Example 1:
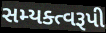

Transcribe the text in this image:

સમ્યક્ત્વરૂપી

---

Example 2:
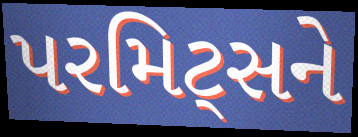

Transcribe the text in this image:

પરમિટ્સને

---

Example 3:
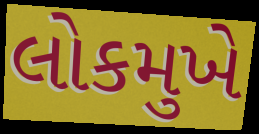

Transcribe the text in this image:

લોકમુખે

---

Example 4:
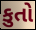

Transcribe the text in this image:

કુતો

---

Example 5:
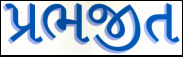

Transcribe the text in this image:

પ્રભજીત